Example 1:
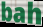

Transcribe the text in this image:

bah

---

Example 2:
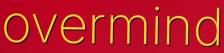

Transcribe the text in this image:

overmind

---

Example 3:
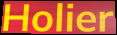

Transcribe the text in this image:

Holier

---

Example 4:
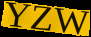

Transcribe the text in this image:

YZW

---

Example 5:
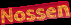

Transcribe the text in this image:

Nossen